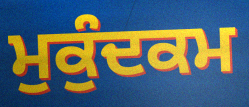
ਮੁਕੁੰਦਕਮ